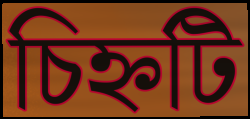
চিহ্নটি